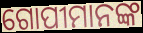
ଗୋପୀମାନଙ୍କ